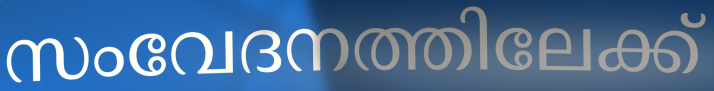
സംവേദനത്തിലേക്ക്